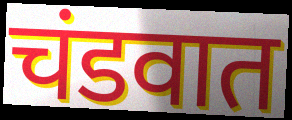
चंडवात